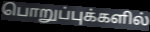
பொறுப்புக்களில்